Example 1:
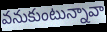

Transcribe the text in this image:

వనుకుంటున్నావా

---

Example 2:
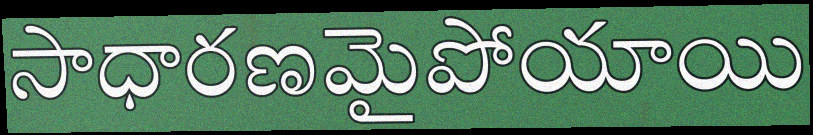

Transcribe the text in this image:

సాధారణమైపోయాయి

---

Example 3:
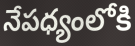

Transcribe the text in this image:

నేపధ్యంలోకి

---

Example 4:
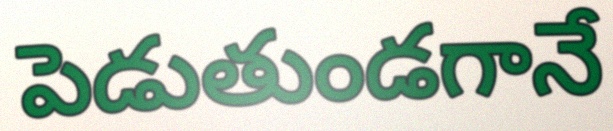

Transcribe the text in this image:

పెడుతుండగానే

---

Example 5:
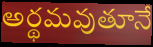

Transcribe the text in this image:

అర్థమవుతూనే